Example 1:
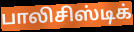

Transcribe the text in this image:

பாலிசிஸ்டிக்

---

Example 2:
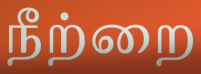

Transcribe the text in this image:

நீற்றை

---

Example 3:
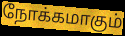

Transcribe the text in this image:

நோக்கமாகும்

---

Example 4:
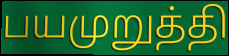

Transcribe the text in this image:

பயமுறுத்தி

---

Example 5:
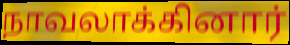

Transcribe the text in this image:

நாவலாக்கினார்